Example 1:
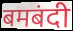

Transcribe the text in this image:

बमबंदी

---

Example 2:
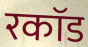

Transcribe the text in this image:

रकॉड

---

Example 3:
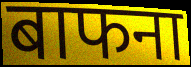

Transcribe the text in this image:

बाफना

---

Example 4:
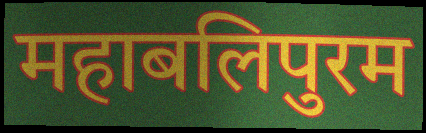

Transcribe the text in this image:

महाबलिपुरम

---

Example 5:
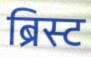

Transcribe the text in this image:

ब्रिस्ट